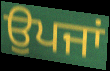
ਉਪਜਾਂ